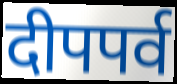
दीपपर्व